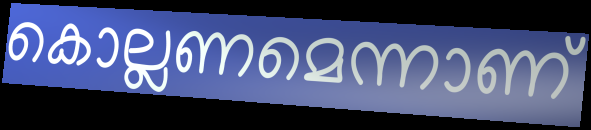
കൊല്ലണമെന്നാണ്